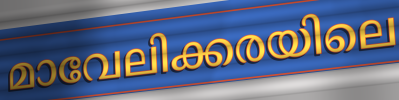
മാവേലിക്കരയിലെ